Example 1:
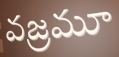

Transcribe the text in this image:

వజ్రమూ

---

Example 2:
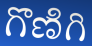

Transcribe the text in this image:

గొణిగి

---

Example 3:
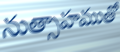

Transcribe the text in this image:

నుత్సాహముతో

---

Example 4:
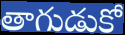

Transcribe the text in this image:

తాగుడుకో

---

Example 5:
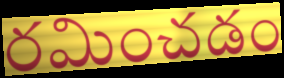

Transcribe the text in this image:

రమించడం